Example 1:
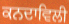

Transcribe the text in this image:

ਕਨਦਾਵਿਲੀ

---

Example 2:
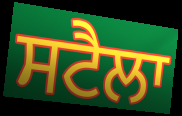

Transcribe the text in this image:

ਸਟੈਲਾ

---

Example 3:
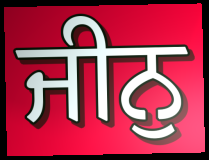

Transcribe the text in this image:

ਜੀਨੁ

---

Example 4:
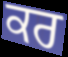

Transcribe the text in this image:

ਕਰ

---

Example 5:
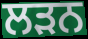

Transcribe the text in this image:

ਲਡ਼ਨ